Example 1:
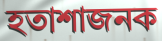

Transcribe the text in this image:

হতাশাজনক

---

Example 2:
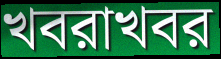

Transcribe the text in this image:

খবরাখবর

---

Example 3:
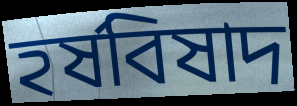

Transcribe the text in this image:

হর্ষবিষাদ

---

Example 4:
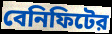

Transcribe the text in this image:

বেনিফিটের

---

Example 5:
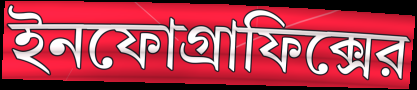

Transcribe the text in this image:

ইনফোগ্রাফিক্সের